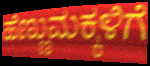
ಹೆಣ್ಣುಮಕ್ಕಳಿಗೆ